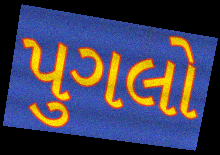
પુગલો